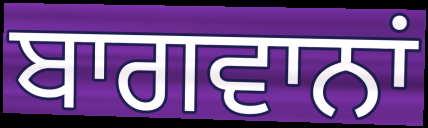
ਬਾਗਵਾਨਾਂ